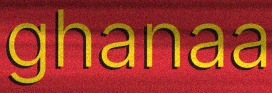
ghanaa